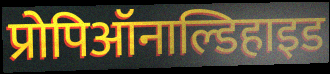
प्रोपिऑनाल्डिहाइड